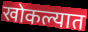
खोकल्यात